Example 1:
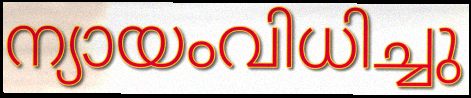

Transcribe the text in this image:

ന്യായംവിധിച്ചു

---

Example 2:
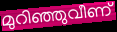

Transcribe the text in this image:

മുറിഞ്ഞുവീണ്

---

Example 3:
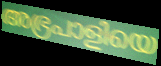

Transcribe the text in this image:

അഭ്രപാളിയെ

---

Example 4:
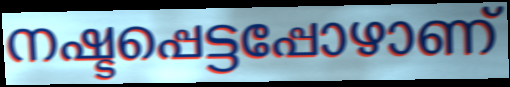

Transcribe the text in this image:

നഷ്ടപ്പെട്ടപ്പോഴാണ്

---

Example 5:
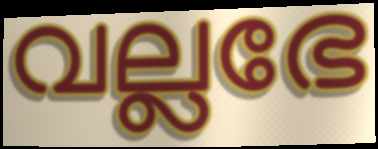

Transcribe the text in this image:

വല്ലഭേ